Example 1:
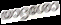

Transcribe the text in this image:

യാദൃശോ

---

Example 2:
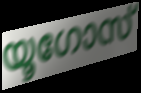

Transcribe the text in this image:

യൂഗോസ്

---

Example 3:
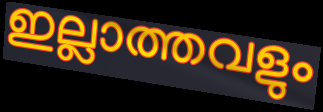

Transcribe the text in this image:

ഇല്ലാത്തവളും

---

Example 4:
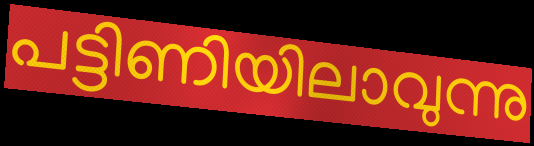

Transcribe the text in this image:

പട്ടിണിയിലാവുന്നു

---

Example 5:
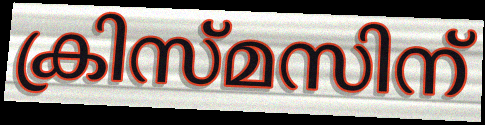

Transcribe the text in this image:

ക്രിസ്മസിന്